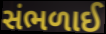
સંભળાઈ